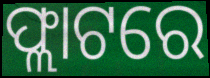
ଫ୍ଲାଟରେ